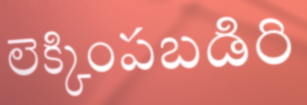
లెక్కింపబడిరి